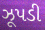
ઝૂપડી